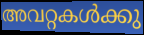
അവറ്റകൾക്കു